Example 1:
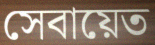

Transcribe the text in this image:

সেবায়েত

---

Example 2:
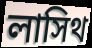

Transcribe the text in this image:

লাসিথ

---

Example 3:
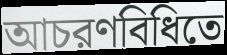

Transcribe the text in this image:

আচরণবিধিতে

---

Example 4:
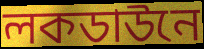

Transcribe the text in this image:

লকডাউনে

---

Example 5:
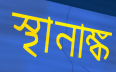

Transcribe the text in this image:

স্থানাঙ্ক